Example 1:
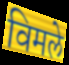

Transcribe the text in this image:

विमले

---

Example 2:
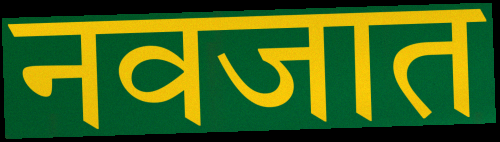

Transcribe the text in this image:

नवजात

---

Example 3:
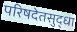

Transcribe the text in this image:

परिषदेतसुद्धा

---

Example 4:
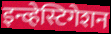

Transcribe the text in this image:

इन्व्हेस्टिगेशन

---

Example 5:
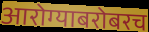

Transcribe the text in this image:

आरोग्याबरोबरच